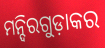
ମନ୍ଦିରଗୁଡ଼ାକର